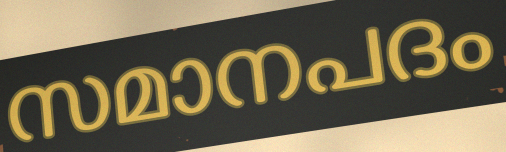
സമാനപദം